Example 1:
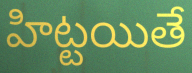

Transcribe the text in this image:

హిట్టయితే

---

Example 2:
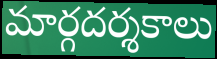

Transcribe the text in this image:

మార్గదర్శకాలు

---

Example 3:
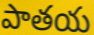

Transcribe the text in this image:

పాతయ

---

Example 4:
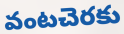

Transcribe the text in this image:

వంటచెరకు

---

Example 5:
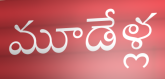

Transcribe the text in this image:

మూడేళ్ల